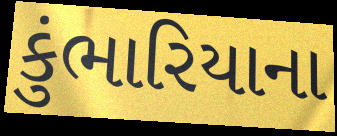
કુંભારિયાના